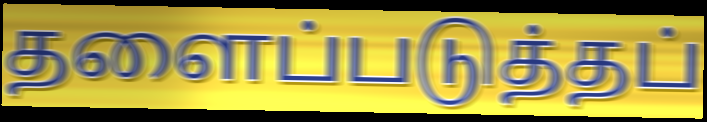
தளைப்படுத்தப்